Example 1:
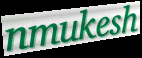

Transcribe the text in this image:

nmukesh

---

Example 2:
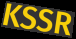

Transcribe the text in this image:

KSSR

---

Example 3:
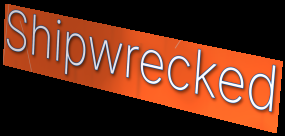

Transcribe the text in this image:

Shipwrecked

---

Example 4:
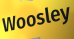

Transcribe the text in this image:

Woosley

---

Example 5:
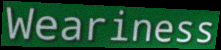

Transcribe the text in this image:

Weariness